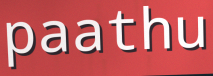
paathu